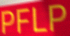
PFLP